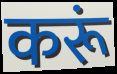
करूं